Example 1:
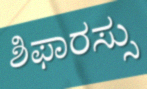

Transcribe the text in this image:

ಶಿಫಾರಸ್ಸು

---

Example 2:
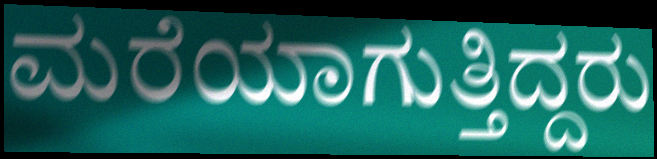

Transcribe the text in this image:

ಮರೆಯಾಗುತ್ತಿದ್ದರು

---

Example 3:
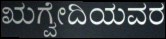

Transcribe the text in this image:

ಋಗ್ವೇದಿಯವರ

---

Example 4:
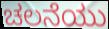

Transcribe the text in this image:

ಚಲನೆಯು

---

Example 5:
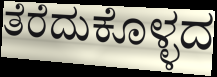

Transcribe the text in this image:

ತೆರೆದುಕೊಳ್ಳದ